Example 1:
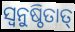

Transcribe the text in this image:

ସ୍ଵନୁଷ୍ଠିତାତ୍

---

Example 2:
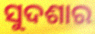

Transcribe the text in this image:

ସୁଦଶାର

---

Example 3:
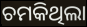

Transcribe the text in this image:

ଚମକିଥିଲା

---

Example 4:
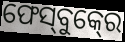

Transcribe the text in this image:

ଫେସ୍‍ବୁକ୍‍ରେ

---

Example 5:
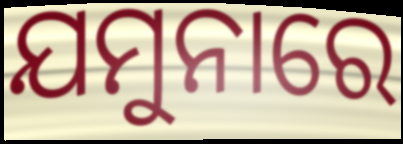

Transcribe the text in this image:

ଯମୁନାରେ